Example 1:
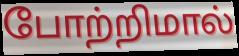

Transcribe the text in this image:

போற்றிமால்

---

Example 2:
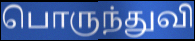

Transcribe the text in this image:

பொருந்துவி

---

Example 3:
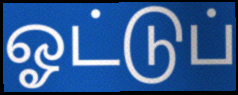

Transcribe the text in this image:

ஓட்டுப்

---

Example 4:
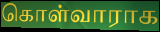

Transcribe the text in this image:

கொள்வாராக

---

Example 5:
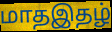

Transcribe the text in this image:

மாதஇதழ்